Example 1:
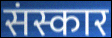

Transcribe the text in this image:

संस्‍कार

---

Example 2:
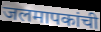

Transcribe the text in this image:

जलमापकांची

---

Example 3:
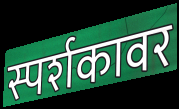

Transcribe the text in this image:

स्पर्शकावर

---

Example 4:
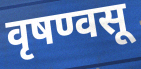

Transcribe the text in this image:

वृषण्वसू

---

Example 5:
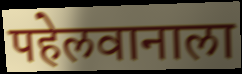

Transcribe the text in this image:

पहेलवानाला